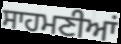
ਸਾਹਮਣੀਆਂ